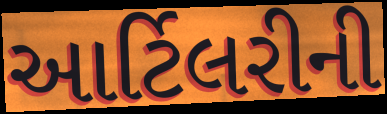
આર્ટિલરીની